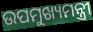
ଉପମୁଖ୍ୟମନ୍ତ୍ରୀ